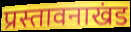
प्रस्तावनाखंड